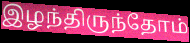
இழந்திருந்தோம்